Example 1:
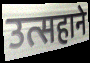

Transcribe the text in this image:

उत्सहाने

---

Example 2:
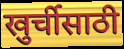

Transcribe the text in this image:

खुर्चीसाठी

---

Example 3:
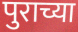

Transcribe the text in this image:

पुराच्या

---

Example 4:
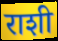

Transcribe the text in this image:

राशी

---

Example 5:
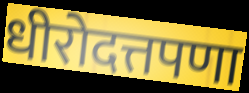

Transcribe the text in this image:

धीरोदत्तपणा